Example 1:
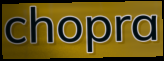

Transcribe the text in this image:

chopra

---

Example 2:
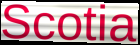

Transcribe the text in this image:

Scotia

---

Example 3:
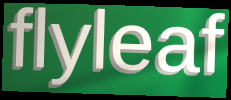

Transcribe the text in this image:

flyleaf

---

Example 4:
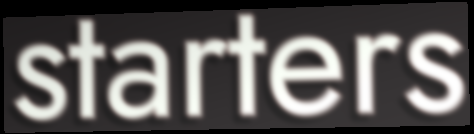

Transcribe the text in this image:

starters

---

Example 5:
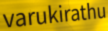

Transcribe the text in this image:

varukirathu